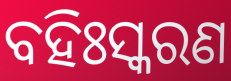
ବହିଃସ୍କରଣ